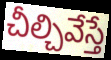
చీల్చివేస్తే